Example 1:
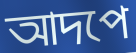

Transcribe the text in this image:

আদপে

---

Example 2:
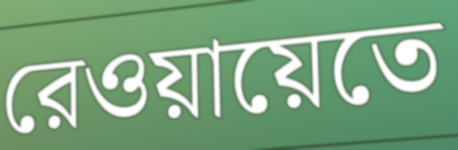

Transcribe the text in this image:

রেওয়ায়েতে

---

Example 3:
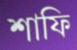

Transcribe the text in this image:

শাফি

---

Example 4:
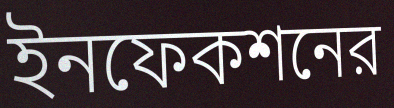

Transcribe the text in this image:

ইনফেকশনের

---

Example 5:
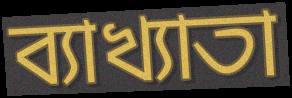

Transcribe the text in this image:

ব্যাখ্যাতা